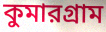
কুমারগ্রাম